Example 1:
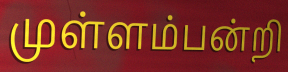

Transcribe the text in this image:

முள்ளம்பன்றி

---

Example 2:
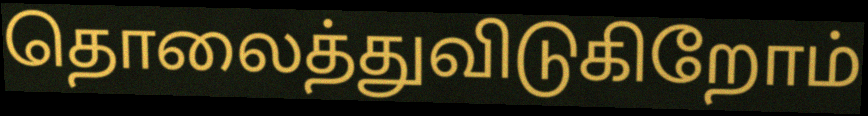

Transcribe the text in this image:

தொலைத்துவிடுகிறோம்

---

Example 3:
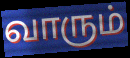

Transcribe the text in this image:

வாரும்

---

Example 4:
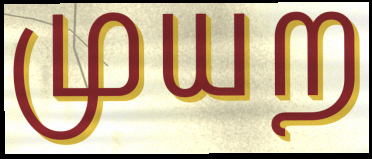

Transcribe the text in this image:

முயற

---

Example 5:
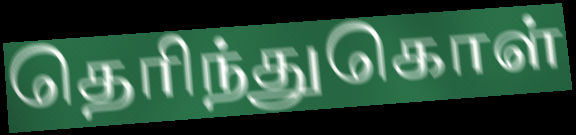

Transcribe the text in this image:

தெரிந்துகொள்